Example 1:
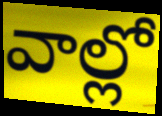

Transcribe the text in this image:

వాల్లో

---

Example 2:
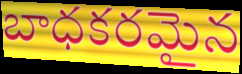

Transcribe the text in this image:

బాధకరమైన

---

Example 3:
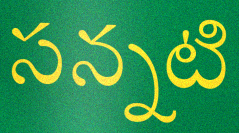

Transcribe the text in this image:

సన్నటి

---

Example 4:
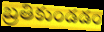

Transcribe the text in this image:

బ్రతికుండడం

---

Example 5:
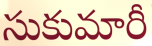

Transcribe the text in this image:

సుకుమారీ